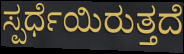
ಸ್ಪರ್ಧೆಯಿರುತ್ತದೆ